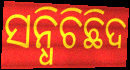
ସନ୍ଧିଚିଛିଦ